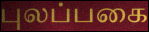
புலப்பகை